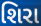
શિરા